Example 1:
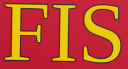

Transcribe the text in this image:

FIS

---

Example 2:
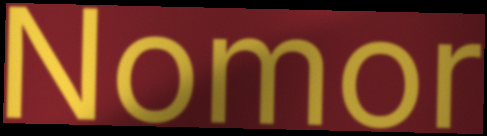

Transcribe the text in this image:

Nomor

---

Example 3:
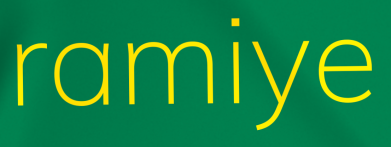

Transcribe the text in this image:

ramiye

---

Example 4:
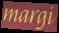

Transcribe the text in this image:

margi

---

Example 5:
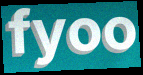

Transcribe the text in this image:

fyoo